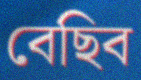
বেছিব